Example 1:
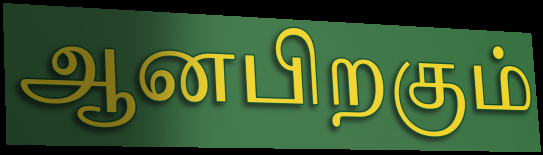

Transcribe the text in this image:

ஆனபிறகும்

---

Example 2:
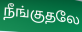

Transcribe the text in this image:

நீங்குதலே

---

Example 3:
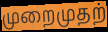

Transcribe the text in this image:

முறைமுதற்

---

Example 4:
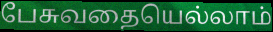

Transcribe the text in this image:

பேசுவதையெல்லாம்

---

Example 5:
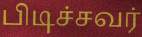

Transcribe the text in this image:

பிடிச்சவர்